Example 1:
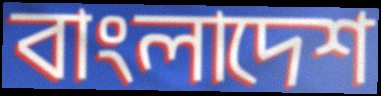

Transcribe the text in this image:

বাংলাদেশ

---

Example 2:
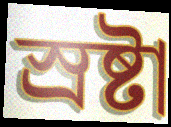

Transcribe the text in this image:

স্রষ্টা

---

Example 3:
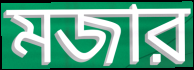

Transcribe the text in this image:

মজার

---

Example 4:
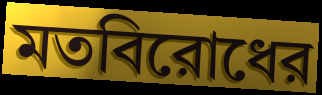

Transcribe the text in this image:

মতবিরোধের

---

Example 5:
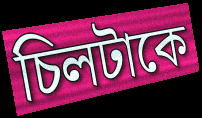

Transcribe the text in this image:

চিলটাকে